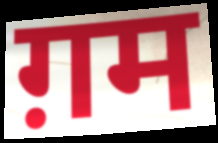
ग़म